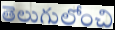
తెలుగులోంచి